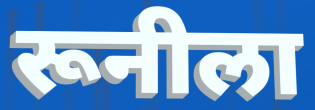
रूनीला